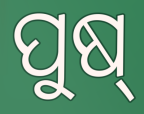
ପୁଷ୍